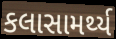
કલાસામર્થ્ય